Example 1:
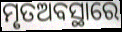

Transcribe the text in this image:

ମୃତଅବସ୍ଥାରେ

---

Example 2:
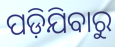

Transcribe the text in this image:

ପଡ଼ିଯିବାରୁ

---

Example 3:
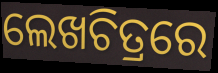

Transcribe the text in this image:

ଲେଖଚିତ୍ରରେ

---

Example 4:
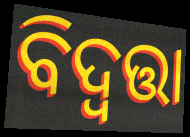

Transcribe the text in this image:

ବିଦ୍ୱତ୍ତା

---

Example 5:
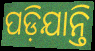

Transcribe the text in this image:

ପଡ଼ିଯାନ୍ତି